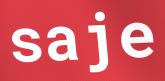
saje